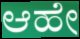
ಆಹೇ